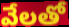
వేలతో